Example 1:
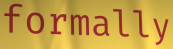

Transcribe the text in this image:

formally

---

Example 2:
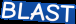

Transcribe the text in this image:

BLAST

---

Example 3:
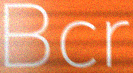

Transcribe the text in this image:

Bcr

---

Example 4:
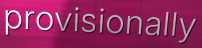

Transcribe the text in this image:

provisionally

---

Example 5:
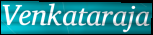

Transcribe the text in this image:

Venkataraja